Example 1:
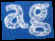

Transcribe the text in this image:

ag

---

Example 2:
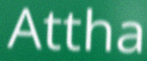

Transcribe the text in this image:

Attha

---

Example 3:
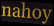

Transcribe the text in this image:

nahoy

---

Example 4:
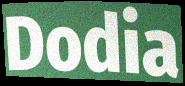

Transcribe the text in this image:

Dodia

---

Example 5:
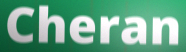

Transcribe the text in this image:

Cheran